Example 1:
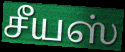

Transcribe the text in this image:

சீயஸ்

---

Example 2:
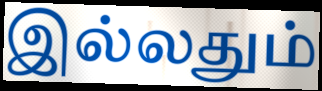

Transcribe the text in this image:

இல்லதும்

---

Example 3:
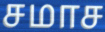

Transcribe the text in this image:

சமாச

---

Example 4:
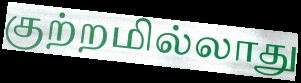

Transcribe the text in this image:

குற்றமில்லாது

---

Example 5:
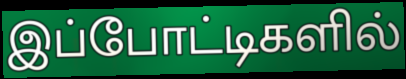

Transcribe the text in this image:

இப்போட்டிகளில்